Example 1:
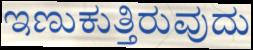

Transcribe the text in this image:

ಇಣುಕುತ್ತಿರುವುದು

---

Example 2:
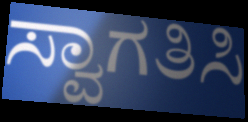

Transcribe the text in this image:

ಸ್ವಾಗತಿಸಿ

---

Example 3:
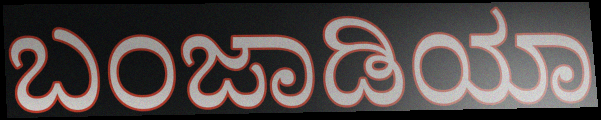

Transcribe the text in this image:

ಬಂಜಾಡಿಯಾ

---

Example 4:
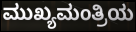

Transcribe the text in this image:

ಮುಖ್ಯಮಂತ್ರಿಯ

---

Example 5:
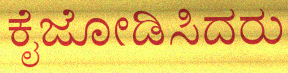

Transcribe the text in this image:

ಕೈಜೋಡಿಸಿದರು